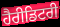
ਹੈਰੀਡਿਟਰੀ